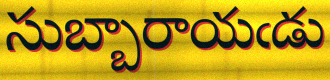
సుబ్బారాయఁడు